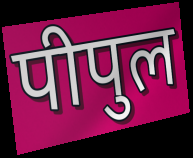
पीपुल